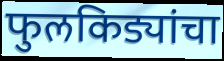
फुलकिड्यांचा